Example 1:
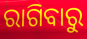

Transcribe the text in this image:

ରାଗିବାରୁ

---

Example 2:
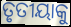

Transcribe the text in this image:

ତୃତୀୟାକୁ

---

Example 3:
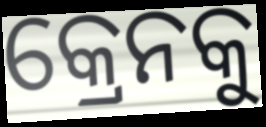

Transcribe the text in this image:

କ୍ରେନକୁ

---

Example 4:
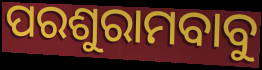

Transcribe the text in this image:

ପରଶୁରାମବାବୁ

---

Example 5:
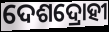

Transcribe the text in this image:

ଦେଶଦ୍ରୋହୀ